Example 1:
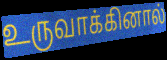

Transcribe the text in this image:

உருவாக்கினால்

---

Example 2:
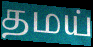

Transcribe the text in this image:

தமய்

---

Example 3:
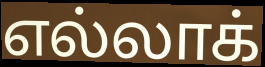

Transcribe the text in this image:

எல்லாக்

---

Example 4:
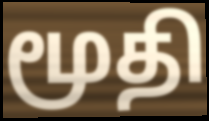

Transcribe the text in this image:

மூதி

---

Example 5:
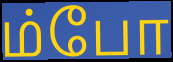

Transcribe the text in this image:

ம்போ